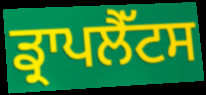
ਡ੍ਰਾਪਲੈੱਟਸ